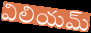
విలియమ్